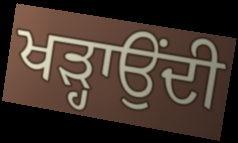
ਖੜ੍ਹਾਉਂਦੀ